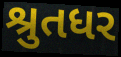
શ્રુતધર